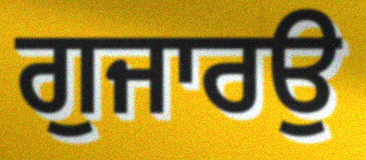
ਗੁਜਾਰਉ